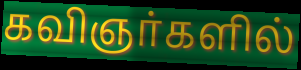
கவிஞர்களில்